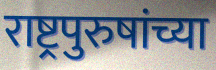
राष्ट्रपुरुषांच्या